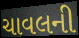
ચાવલની